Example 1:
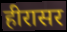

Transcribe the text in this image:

हीरासर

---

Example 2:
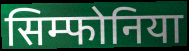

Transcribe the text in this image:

सिम्फोनिया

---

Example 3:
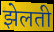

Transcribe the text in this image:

झेलती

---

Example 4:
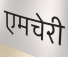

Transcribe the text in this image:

एमचेरी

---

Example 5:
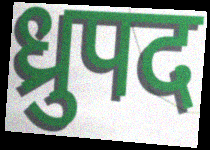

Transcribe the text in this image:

ध्रुपद